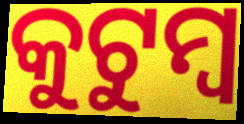
କୁଟୁମ୍ଵ